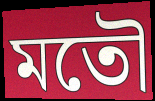
মতৌ